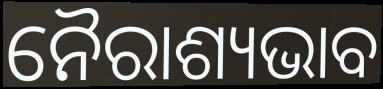
ନୈରାଶ୍ୟଭାବ